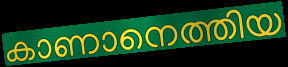
കാണാനെത്തിയ